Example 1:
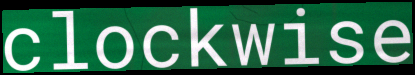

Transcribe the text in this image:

clockwise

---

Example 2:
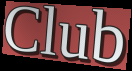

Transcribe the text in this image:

Club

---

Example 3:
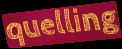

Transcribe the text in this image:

quelling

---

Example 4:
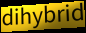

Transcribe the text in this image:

dihybrid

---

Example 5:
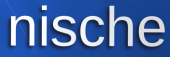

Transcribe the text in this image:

nische